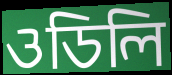
ওডিলি